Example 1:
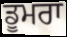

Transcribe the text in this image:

ਡੂਮਰਾ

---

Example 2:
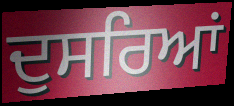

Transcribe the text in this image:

ਦੁਸਰਿਆਂ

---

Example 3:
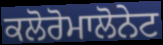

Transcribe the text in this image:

ਕਲੋਰੋਮਾਲੋਨੇਟ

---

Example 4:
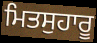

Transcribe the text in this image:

ਮਿਤਸੁਹਾਰੂ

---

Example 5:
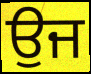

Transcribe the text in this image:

ਉਜ